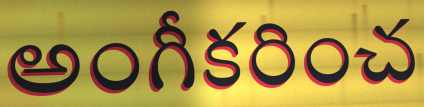
అంగీకరించ